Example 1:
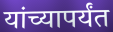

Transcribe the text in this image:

यांच्यापर्यंत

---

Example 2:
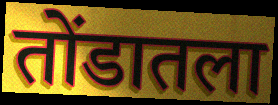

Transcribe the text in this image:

तोंडातला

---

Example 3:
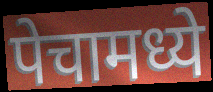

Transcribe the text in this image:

पेचामध्ये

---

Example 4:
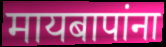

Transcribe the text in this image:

मायबापांना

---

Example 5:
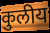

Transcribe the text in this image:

कुलीय